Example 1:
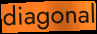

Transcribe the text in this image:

diagonal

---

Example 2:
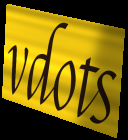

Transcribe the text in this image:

vdots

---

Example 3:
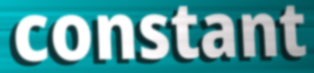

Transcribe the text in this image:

constant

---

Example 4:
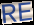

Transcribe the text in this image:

RE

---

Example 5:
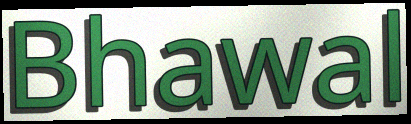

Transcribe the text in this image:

Bhawal